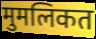
मुमलिकत